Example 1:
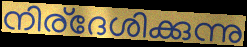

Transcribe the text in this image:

നിര്ദേശിക്കുന്നു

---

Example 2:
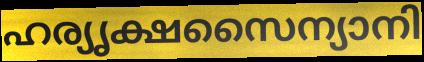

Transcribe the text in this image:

ഹര്യൃക്ഷസൈന്യാനി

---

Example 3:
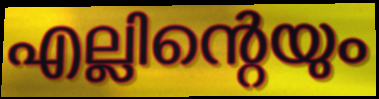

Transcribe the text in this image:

എല്ലിന്റെയും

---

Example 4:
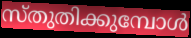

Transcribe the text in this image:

സ്തുതിക്കുമ്പോൾ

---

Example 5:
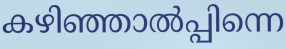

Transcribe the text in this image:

കഴിഞ്ഞാൽപ്പിന്നെ